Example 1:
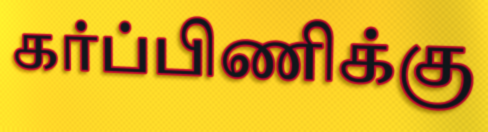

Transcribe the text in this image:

கர்ப்பிணிக்கு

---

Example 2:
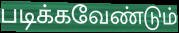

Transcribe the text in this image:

படிக்கவேண்டும்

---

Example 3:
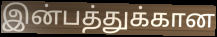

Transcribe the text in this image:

இன்பத்துக்கான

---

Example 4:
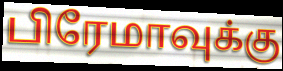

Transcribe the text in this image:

பிரேமாவுக்கு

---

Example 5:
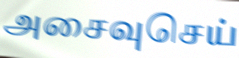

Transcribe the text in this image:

அசைவுசெய்